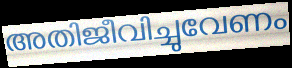
അതിജീവിച്ചുവേണം